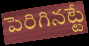
పెరిగినట్టే